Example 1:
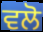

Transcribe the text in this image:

ਵਲੋ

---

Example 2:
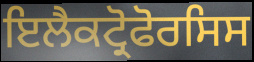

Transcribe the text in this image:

ਇਲੈਕਟ੍ਰੋਫੋਰਸਿਸ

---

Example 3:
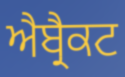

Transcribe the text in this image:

ਐਬ੍ਰੈਕਟ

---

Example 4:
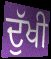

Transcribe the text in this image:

ਦੁੱਖੀ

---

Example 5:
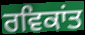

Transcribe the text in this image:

ਰਵਿਕਾਂਤ